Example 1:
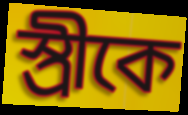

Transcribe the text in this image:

স্ত্রীকে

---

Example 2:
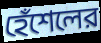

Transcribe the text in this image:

হেঁশেলের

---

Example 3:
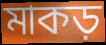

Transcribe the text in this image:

মাকড়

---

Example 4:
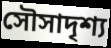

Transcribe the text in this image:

সৌসাদৃশ্য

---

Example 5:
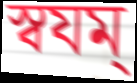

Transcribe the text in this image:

স্বযম্